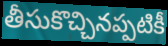
తీసుకొచ్చినప్పటికీ